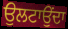
ਉਲਟਾਉਂਦਾ